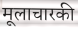
मूलाचारकी